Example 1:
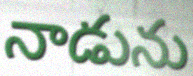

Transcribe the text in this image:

నాడును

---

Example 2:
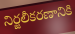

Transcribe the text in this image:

నిర్జలీకరణానికి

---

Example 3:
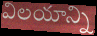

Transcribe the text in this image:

విలయాన్ని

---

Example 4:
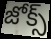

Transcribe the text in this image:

జోక్స్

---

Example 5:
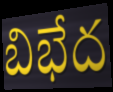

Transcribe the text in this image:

బిభేద